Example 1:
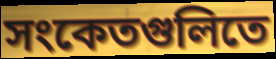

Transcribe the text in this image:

সংকেতগুলিতে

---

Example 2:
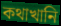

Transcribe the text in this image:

কথাখানি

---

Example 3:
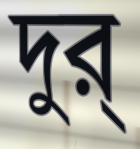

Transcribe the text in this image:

দুর্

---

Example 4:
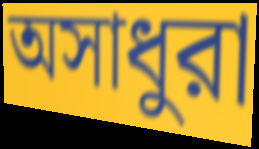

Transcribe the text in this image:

অসাধুরা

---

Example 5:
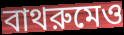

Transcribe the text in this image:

বাথরুমেও